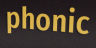
phonic